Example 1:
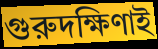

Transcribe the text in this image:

গুরুদক্ষিণাই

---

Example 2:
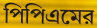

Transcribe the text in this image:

পিপিএমের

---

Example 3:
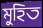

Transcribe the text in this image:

মুহিত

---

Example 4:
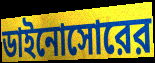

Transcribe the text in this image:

ডাইনোসোরের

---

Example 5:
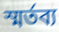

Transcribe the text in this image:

স্মর্তব্য